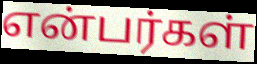
என்பர்கள்